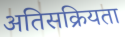
अतिसक्रियता